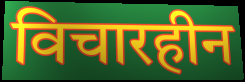
विचारहीन